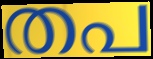
തപ